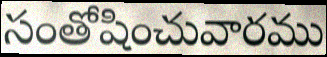
సంతోషించువారము